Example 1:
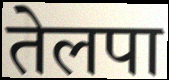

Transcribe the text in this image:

तेलपा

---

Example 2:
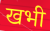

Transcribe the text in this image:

खभी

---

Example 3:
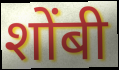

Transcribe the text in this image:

शोंबी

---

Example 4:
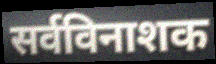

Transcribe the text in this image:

सर्वविनाशक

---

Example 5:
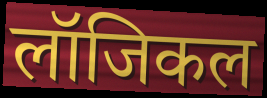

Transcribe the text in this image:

लॉजिकल